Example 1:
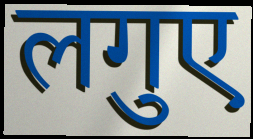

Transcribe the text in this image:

लगुए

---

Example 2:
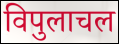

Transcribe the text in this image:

विपुलाचल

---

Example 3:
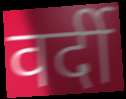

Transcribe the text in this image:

वर्दी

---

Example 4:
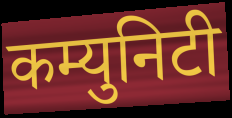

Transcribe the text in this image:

कम्युनिटी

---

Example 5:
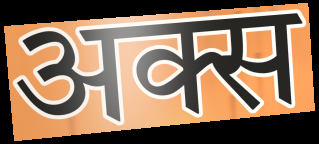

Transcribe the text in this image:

अक्स